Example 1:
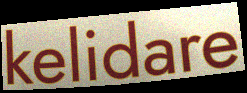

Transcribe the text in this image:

kelidare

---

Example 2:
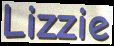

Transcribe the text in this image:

Lizzie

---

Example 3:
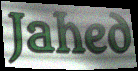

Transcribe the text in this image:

Jahed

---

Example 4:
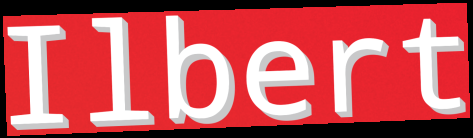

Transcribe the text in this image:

Ilbert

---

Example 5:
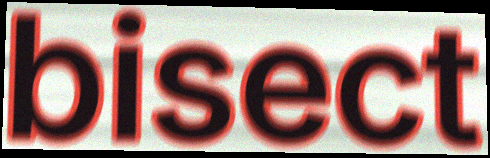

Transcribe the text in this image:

bisect